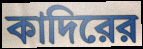
কাদিরের